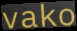
vako